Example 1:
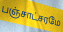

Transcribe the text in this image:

பஞ்சாட்சரமே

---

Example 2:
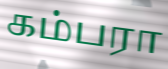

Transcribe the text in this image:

கம்பரா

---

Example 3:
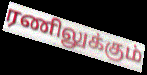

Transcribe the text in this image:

ரணிலுக்கும்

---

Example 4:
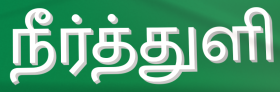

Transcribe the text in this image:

நீர்த்துளி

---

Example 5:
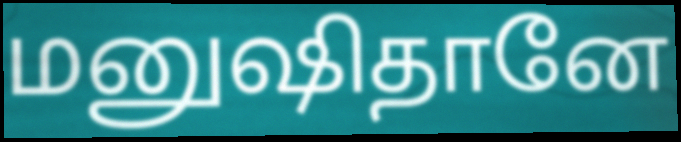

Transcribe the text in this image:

மனுஷிதானே